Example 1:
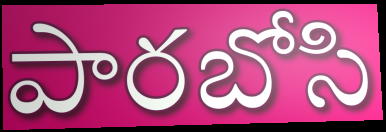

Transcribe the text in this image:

పారబోసి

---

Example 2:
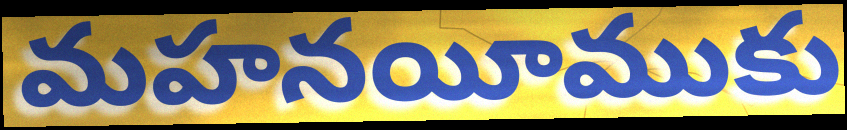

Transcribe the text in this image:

మహనయీముకు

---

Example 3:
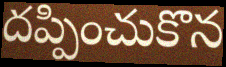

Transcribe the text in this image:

దప్పించుకొన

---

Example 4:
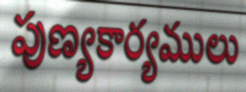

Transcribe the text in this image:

పుణ్యకార్యములు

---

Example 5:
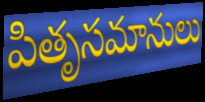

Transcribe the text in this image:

పితృసమానులు